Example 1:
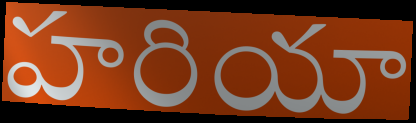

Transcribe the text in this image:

హరియా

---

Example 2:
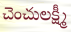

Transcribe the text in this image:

చెంచులక్ష్మీ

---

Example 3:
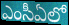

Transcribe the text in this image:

ఎంసీఏలో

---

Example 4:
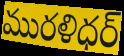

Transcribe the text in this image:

మురళిధర్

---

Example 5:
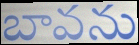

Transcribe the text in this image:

బావను